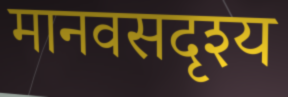
मानवसदृश्य